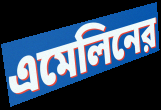
এমেলিনের